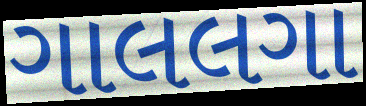
ગાલલગા